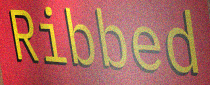
Ribbed